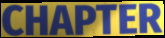
CHAPTER